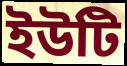
ইউটি